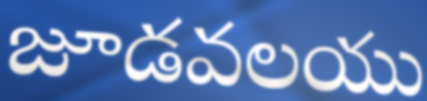
జూడవలయు